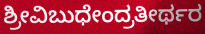
ಶ್ರೀವಿಬುಧೇಂದ್ರತೀರ್ಥರ